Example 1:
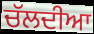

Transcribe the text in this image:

ਚੱਲਦੀਆ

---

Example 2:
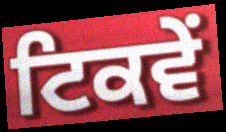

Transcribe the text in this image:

ਟਿਕਵੇਂ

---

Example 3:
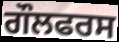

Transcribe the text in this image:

ਗੌਲਫਰਸ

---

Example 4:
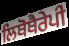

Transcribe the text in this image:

ਲਿਥੋਥੈਰੇਪੀ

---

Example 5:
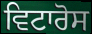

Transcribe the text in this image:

ਵਿਟਾਰੋਸ